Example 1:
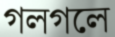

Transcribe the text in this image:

গলগলে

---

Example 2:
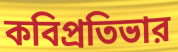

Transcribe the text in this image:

কবিপ্রতিভার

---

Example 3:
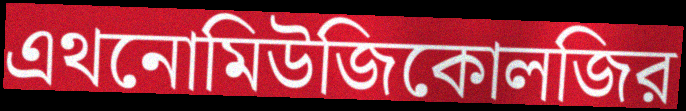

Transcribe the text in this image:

এথনোমিউজিকোলজির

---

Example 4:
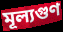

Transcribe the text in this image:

মূল্যগুণ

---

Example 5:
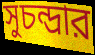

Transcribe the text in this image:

সুচন্দ্রার